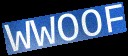
WWOOF